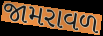
જામરાવળ